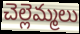
చెల్లెమ్మలు